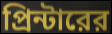
প্রিন্টারের